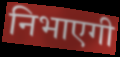
निभाएगी